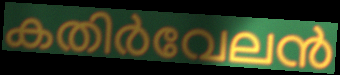
കതിർവേലൻ